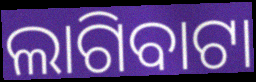
ଲାଗିବାଟା